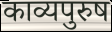
काव्यपुरुष